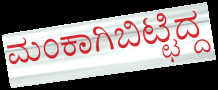
ಮಂಕಾಗಿಬಿಟ್ಟಿದ್ದ